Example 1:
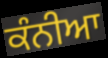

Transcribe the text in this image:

ਕੰਨੀਆ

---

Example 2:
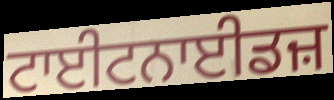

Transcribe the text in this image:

ਟਾਈਟਨਾਈਡਜ਼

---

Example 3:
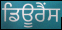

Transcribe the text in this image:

ਡਿਊਰੈਂਸ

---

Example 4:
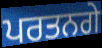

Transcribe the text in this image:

ਪਰਤਨਗੇ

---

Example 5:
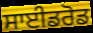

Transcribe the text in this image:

ਸਾਈਡਰੋਡ